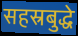
सहस्रबुद्धे